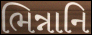
ભિન્નાનિ